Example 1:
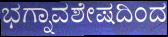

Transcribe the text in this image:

ಭಗ್ನಾವಶೇಷದಿಂದ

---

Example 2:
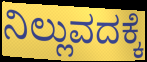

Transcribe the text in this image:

ನಿಲ್ಲುವದಕ್ಕೆ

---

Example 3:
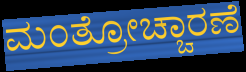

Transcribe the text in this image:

ಮಂತ್ರೋಚ್ಚಾರಣೆ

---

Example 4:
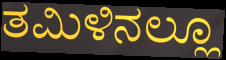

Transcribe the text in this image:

ತಮಿಳಿನಲ್ಲೂ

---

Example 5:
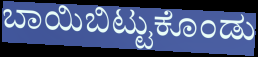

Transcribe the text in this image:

ಬಾಯಿಬಿಟ್ಟುಕೊಂಡು